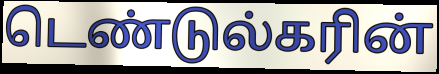
டெண்டுல்கரின்